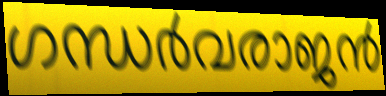
ഗന്ധർവരാജൻ